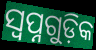
ସ୍ୱପ୍ନଗୁଡ଼ିକ